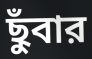
ছুঁবার